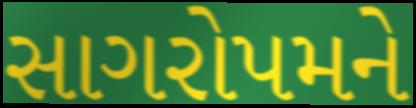
સાગરોપમને